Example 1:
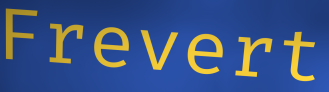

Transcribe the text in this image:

Frevert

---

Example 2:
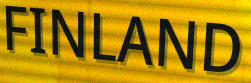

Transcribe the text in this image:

FINLAND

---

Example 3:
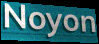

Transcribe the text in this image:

Noyon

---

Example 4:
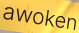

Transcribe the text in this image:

awoken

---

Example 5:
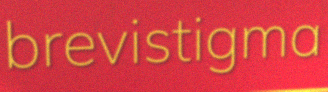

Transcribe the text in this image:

brevistigma